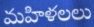
మహిళలలు